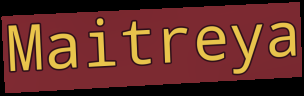
Maitreya